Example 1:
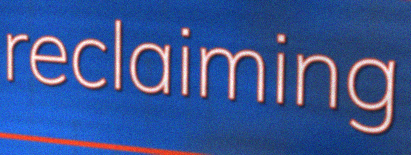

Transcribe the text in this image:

reclaiming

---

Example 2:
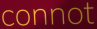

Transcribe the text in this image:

connot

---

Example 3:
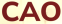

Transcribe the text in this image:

CAO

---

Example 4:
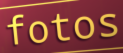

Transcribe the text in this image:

fotos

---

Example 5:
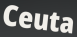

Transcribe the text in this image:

Ceuta